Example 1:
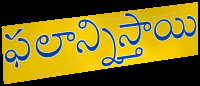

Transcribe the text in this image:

ఫలాన్నిస్తాయి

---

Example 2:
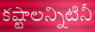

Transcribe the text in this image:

కష్టాలన్నిటినీ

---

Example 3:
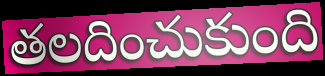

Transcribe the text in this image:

తలదించుకుంది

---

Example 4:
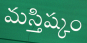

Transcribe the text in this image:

మస్తిష్కం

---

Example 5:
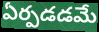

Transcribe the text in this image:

ఏర్పడడమే